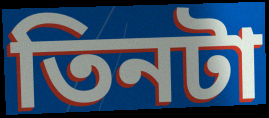
তিনটা